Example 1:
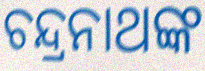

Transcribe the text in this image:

ଚନ୍ଦ୍ରନାଥଙ୍କ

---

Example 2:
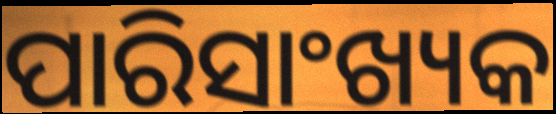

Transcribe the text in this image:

ପାରିସାଂଖ୍ୟକ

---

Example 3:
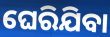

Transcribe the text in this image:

ଘେରିଯିବା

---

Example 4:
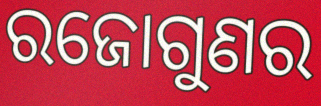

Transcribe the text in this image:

ରଜୋଗୁଣର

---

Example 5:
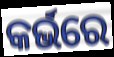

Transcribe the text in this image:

କର୍ଭରେ